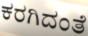
ಕರಗಿದಂತೆ